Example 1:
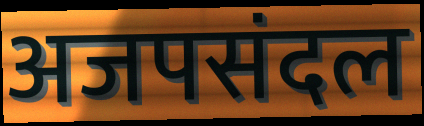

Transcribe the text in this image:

अजपसंदल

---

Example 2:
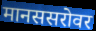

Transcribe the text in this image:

मानससरोवर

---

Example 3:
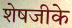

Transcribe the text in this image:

शेषजीके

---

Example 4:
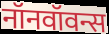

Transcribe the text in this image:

नॉनवॉवन्स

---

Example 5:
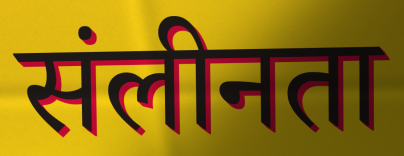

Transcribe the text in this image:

संलीनता